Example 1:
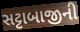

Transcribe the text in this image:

સટ્ટાબાજીની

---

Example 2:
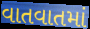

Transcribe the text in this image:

વાતવાતમાં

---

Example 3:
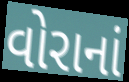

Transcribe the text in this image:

વોરાનાં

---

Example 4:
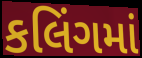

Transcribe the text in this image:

કલિંગમાં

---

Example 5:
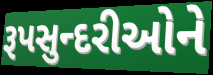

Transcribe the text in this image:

રૂપસુન્દરીઓને